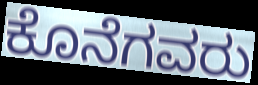
ಕೊನೆಗವರು